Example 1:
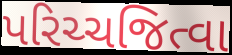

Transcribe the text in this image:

પરિચ્ચજિત્વા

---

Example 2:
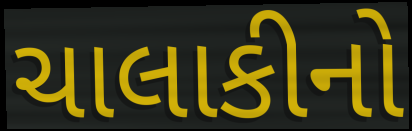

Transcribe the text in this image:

ચાલાકીનો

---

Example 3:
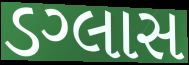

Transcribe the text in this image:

ડગ્લાસ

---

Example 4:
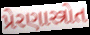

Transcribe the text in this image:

પ્રેરણાસ્ત્રોત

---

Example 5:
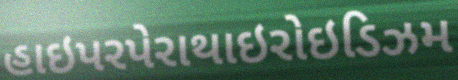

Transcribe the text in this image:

હાઇપરપેરાથાઇરોઇડિઝમ